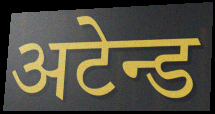
अटेन्ड